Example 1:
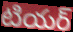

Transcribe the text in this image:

టియర్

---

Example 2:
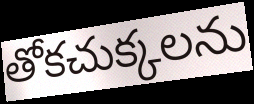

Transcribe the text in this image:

తోకచుక్కలను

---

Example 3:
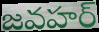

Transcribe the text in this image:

జవహర్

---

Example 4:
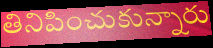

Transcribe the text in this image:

తినిపించుకున్నారు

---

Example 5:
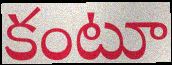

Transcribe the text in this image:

కంటూ